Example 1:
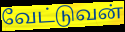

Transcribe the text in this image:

வேட்டுவன்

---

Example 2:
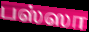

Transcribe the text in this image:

பஸ்ஸா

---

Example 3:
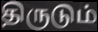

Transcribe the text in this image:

திருடும்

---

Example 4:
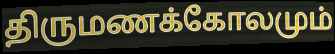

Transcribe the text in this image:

திருமணக்கோலமும்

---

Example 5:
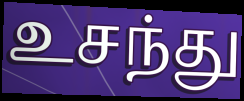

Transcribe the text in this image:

உசந்து